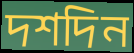
দশদিন